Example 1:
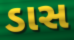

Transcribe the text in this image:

ડાસ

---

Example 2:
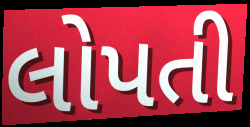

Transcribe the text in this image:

લોપતી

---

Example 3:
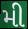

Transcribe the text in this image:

મી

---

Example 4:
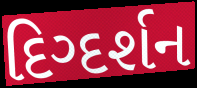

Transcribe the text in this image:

દિગ્દર્શન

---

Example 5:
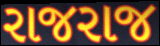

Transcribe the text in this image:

રાજરાજ